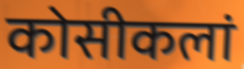
कोसीकलां